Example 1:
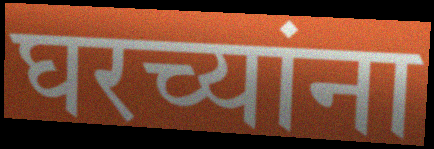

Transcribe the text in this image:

घरच्यांना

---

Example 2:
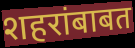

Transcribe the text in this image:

शहरांबाबत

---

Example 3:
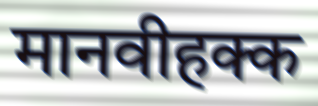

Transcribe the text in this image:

मानवीहक्क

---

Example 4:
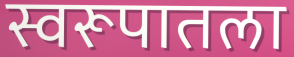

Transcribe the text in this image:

स्वरूपातला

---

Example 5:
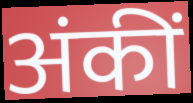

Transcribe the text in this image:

अंकीं